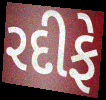
રદીફે